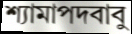
শ্যামাপদবাবু